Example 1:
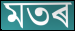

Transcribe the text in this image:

মতৰ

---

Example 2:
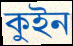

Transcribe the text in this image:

কুইন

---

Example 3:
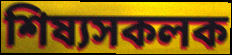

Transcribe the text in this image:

শিষ্যসকলক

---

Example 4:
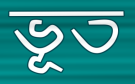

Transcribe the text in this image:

ভূত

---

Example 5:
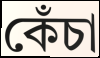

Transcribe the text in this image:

কেঁচা